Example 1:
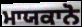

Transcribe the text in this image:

ਮਾਯਕਾਨੋ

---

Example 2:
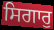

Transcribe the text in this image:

ਸਿਗਾਰੁ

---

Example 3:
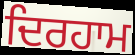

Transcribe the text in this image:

ਦਿਰਹਾਮ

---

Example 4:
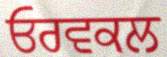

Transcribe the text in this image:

ਓਰਵਕਲ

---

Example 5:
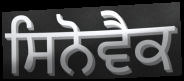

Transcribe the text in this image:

ਸਿਨੋਵੈਕ